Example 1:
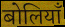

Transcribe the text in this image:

बोलियाँ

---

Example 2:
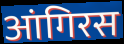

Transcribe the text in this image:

आंगिरस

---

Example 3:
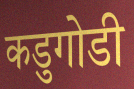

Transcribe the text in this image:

कडुगोडी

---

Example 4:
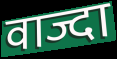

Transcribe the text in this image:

वाज्दा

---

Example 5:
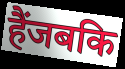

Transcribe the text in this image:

हैंजबकि